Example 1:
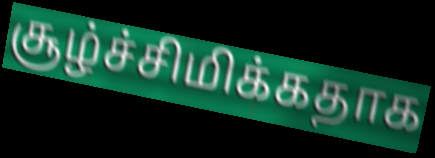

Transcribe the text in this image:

சூழ்ச்சிமிக்கதாக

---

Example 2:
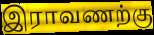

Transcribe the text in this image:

இராவணற்கு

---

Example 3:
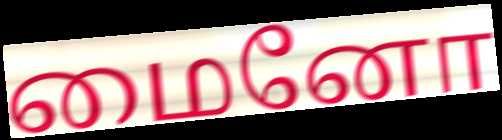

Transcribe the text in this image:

மைனோ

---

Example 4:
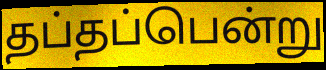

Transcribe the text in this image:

தப்தப்பென்று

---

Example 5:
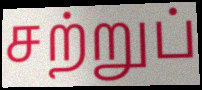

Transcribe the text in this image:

சற்றுப்